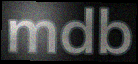
mdb